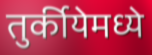
तुर्कीयेमध्ये